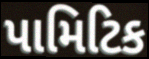
પામિટિક